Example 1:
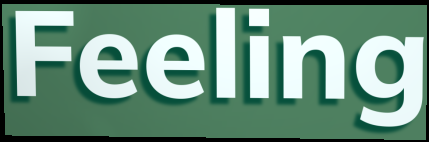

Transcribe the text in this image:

Feeling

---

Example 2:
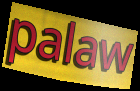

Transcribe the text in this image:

palaw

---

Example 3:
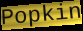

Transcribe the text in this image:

Popkin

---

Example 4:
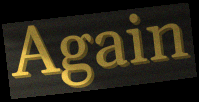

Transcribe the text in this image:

Again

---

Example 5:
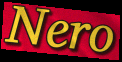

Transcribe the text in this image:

Nero